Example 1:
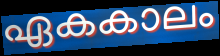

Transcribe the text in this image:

ഏകകാലം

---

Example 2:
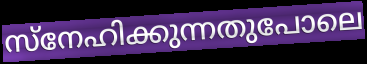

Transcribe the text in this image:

സ്നേഹിക്കുന്നതുപോലെ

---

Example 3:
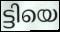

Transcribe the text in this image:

ട്ടിയെ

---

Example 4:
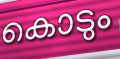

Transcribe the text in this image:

കൊടും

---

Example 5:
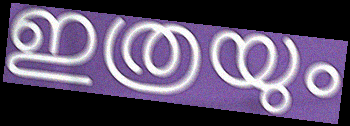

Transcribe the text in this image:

ഇത്രയും